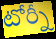
టోర్నీ